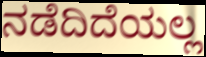
ನಡೆದಿದೆಯಲ್ಲ